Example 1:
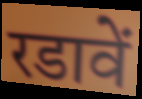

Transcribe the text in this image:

रडावें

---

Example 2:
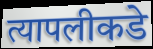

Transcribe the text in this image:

त्यापलीकडे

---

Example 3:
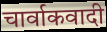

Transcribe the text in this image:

चार्वाकवादी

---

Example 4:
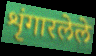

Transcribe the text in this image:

शृंगारलेले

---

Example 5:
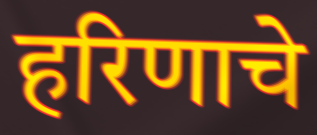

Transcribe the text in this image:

हरिणाचे